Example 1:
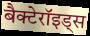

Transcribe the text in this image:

बैक्टेरॉइड्स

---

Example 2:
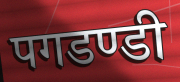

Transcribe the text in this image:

पगडण्डी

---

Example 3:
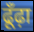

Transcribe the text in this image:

ढूँढ़ा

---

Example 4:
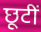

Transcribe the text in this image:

छूटीं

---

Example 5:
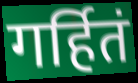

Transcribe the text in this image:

गर्हितं